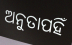
ଅନୁତାପହିଁ